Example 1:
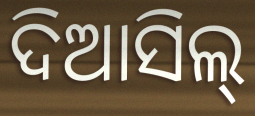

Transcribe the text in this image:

ଦିଆସିଲ୍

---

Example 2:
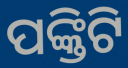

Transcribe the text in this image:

ପଙ୍କ୍ତିଟି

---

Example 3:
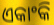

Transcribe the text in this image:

ଏକାଂକି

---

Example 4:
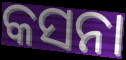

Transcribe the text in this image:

କସନା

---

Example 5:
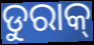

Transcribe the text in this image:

ଡୁରାକ୍